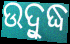
ଉଦ୍ବୁଦ୍ଧ